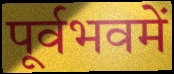
पूर्वभवमें